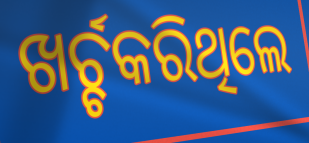
ଖର୍ଚ୍ଚକରିଥିଲେ